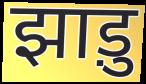
झाड़ु